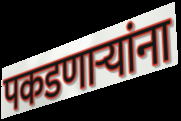
पकडणाऱ्यांना